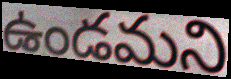
ఉండమని